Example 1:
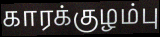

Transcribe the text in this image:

காரக்குழம்பு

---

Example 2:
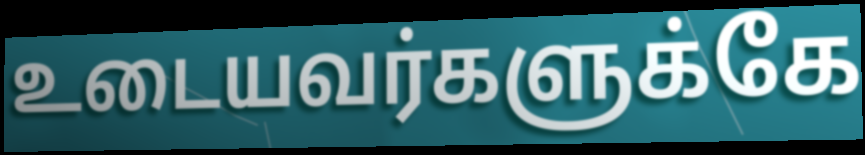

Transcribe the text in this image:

உடையவர்களுக்கே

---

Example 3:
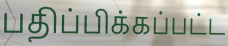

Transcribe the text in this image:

பதிப்பிக்கப்பட்ட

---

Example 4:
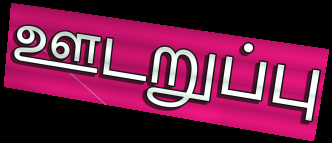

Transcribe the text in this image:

ஊடறுப்பு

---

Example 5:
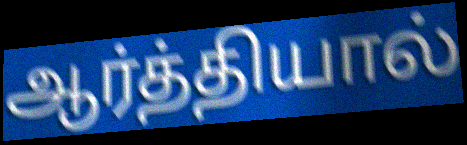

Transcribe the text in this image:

ஆர்த்தியால்